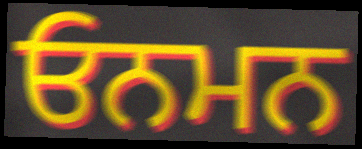
ਓਨਮਨ